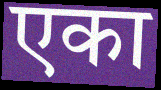
एका